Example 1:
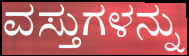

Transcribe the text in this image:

ವಸ್ತುಗಳನ್ನು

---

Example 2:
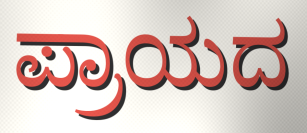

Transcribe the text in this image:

ಪ್ರಾಯದ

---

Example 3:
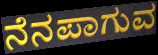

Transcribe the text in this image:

ನೆನಪಾಗುವ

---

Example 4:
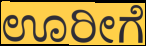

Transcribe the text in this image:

ಊರೀಗೆ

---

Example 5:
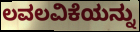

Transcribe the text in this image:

ಲವಲವಿಕೆಯನ್ನು